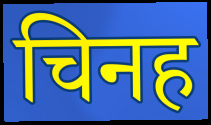
चिनह